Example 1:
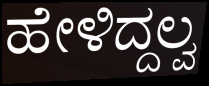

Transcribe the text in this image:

ಹೇಳಿದ್ದಲ್ವ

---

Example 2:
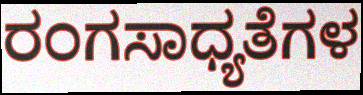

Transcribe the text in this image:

ರಂಗಸಾಧ್ಯತೆಗಳ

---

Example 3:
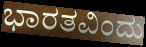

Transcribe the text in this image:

ಭಾರತವಿಂದು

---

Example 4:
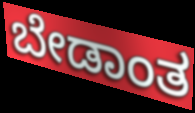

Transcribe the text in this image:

ಬೇಡಾಂತ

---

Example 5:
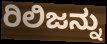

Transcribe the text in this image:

ರಿಲಿಜನ್ನು